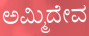
ಅಮ್ಮಿದೇವ